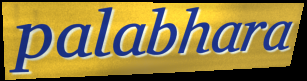
palabhara